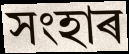
সংহাৰ